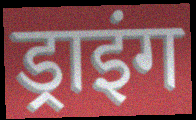
ड्राइंग